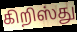
கிறிஸ்து